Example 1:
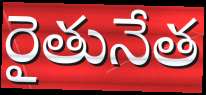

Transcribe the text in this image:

రైతునేత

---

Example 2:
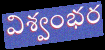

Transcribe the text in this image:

విశ్వంభర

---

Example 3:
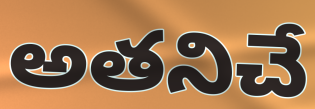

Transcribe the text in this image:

అతనిచే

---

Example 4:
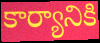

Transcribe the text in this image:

కార్యానికి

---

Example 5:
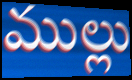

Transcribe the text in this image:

ముల్లు